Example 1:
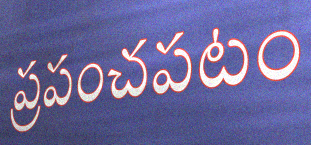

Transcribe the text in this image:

ప్రపంచపటం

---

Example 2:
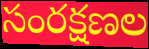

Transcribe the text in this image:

సంరక్షణల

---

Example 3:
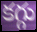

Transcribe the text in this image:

కగ్గు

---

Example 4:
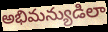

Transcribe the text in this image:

అభిమన్యుడిలా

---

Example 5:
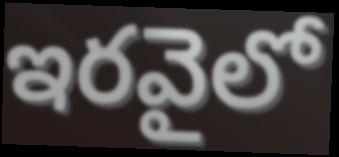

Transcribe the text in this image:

ఇరవైలో